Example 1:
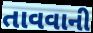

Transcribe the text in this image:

તાવવાની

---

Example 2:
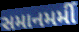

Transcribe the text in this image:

સમાનમર્મી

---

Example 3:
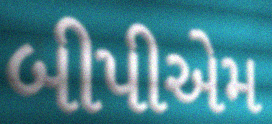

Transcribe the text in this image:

બીપીએમ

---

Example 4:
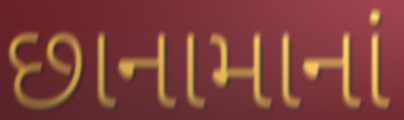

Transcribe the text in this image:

છાનામાનાં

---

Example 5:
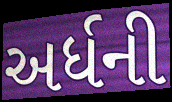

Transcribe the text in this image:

અર્ધની